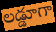
లడ్డూగా